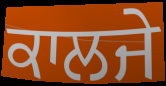
ਕਾਲਜੇ